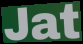
Jat